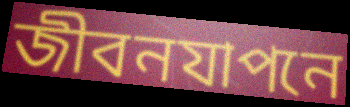
জীবনযাপনে